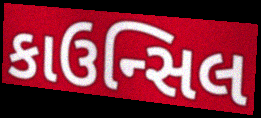
કાઉન્સિલ